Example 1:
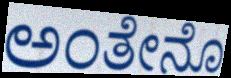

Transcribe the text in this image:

ಅಂತೇನೊ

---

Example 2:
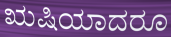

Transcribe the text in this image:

ಋಷಿಯಾದರೂ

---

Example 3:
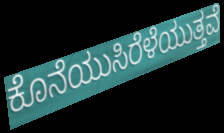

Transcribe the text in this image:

ಕೊನೆಯುಸಿರೆಳೆಯುತ್ತವೆ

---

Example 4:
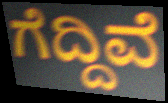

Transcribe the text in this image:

ಗೆದ್ದಿವೆ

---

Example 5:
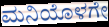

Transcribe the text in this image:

ಮನಿಯೊಳಗೇ